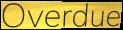
Overdue